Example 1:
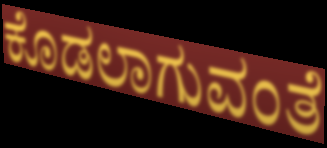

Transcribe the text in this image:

ಕೊಡಲಾಗುವಂತೆ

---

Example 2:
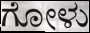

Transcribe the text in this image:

ಗೋಳು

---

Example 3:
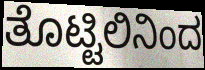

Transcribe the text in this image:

ತೊಟ್ಟಿಲಿನಿಂದ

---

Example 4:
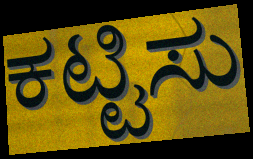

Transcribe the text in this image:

ಕಟ್ಟಿಸು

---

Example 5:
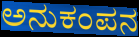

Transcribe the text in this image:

ಅನುಕಂಪನ